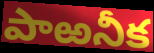
పాఱనీక